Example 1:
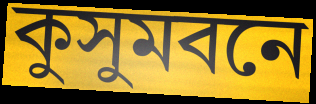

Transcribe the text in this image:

কুসুমবনে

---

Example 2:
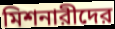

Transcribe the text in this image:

মিশনারীদের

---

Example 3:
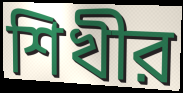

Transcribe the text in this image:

শিখীর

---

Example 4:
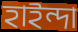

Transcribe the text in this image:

হাইন্দা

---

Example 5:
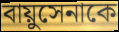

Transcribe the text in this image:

বায়ুসেনাকে